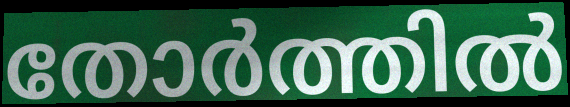
തോർത്തിൽ